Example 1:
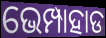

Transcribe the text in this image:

ଭେମ୍ପାହାଡ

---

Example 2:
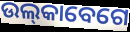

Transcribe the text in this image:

ଉଲ୍‌କାବେଗେ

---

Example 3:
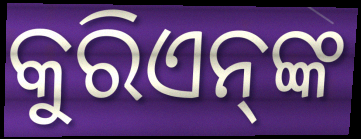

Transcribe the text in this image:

କୁରିଏନ୍‌ଙ୍କ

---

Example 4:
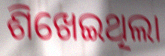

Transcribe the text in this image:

ଶିଖେଇଥିଲା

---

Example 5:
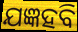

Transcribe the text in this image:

ଯଜ୍ଞହବି